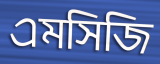
এমসিজি